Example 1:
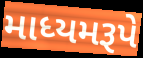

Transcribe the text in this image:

માધ્યમરૂપે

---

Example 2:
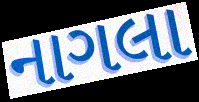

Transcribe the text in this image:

નાગલા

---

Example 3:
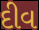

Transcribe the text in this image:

દીવ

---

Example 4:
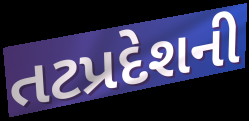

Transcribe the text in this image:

તટપ્રદેશની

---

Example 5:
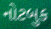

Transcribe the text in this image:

નોટબુક